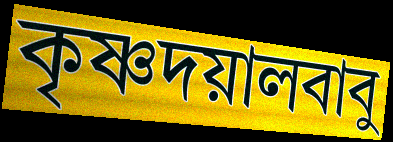
কৃষ্ণদয়ালবাবু